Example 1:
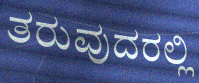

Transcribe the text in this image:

ತರುವುದರಲ್ಲಿ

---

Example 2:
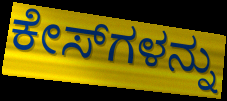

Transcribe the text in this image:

ಕೇಸ್‌ಗಳನ್ನು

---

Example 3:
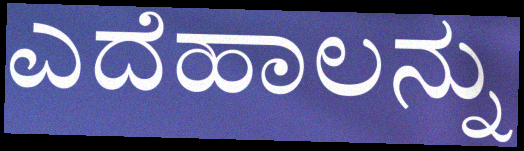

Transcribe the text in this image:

ಎದೆಹಾಲನ್ನು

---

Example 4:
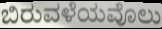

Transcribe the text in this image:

ಬಿರುವಳೆಯವೊಲು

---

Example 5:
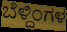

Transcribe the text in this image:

ಬೆಳ್ದಿಂಗಳ